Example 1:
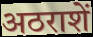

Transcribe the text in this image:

अठराशें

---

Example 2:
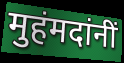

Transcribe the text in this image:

मुहंमदांनीं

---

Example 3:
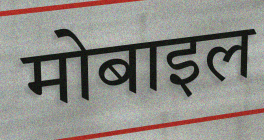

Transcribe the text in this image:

मोबाइल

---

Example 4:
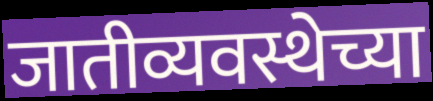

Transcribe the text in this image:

जातीव्यवस्थेच्या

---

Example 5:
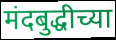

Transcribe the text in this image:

मंदबुद्धीच्या